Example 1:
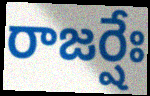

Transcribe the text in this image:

రాజర్షేః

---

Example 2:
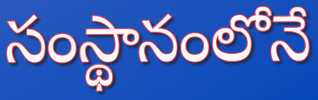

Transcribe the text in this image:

సంస్థానంలోనే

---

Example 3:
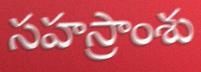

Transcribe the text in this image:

సహస్రాంశు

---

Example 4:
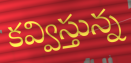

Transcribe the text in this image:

కవ్విస్తున్న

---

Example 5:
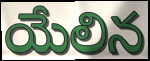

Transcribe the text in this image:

యేలిన